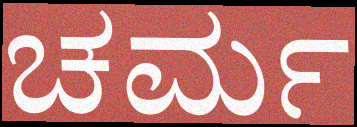
ಚರ್ಮ